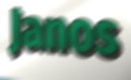
Janos